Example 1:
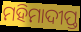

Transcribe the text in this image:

ମହିମାଦୀପ୍ତ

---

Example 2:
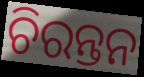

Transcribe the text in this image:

ଚିରନ୍ତନ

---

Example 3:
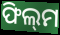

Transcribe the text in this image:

ଫିଲ୍‌ମ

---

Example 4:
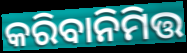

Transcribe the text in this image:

କରିବାନିମିତ୍ତ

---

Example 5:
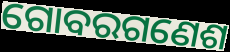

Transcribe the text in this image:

ଗୋବରଗଣେଶ